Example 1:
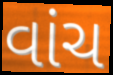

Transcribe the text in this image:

વાંચ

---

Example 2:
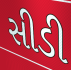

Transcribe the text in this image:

સીડી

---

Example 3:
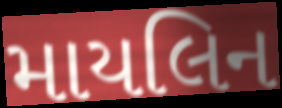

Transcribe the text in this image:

માયલિન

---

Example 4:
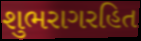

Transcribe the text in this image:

શુભરાગરહિત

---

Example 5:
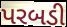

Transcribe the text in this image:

પરબડી